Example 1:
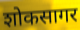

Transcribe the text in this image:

शोकसागर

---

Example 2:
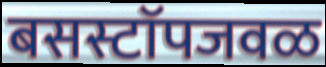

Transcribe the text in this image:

बसस्टॉपजवळ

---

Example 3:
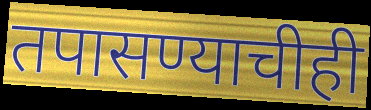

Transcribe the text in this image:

तपासण्याचीही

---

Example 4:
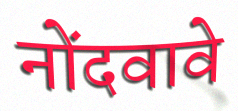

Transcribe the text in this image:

नोंदवावे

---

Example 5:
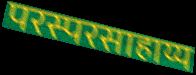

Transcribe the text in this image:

परस्परसाहाय्य